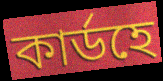
কাৰ্ডহে